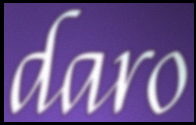
daro